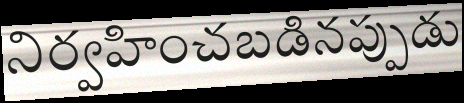
నిర్వహించబడినప్పుడు